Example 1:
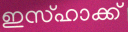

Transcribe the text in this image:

ഇസ്ഹാക്ക്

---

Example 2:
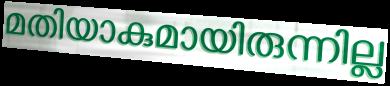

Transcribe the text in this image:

മതിയാകുമായിരുന്നില്ല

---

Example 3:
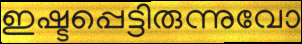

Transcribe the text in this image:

ഇഷ്ടപ്പെട്ടിരുന്നുവോ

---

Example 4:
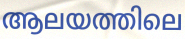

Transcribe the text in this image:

ആലയത്തിലെ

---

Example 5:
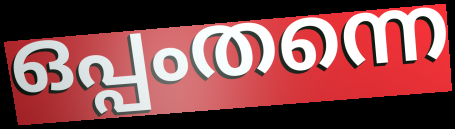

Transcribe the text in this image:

ഒപ്പംതന്നെ